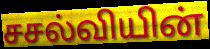
சசல்வியின்